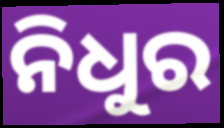
ନିଧୁର